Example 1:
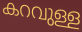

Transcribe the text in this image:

കറവുള്ള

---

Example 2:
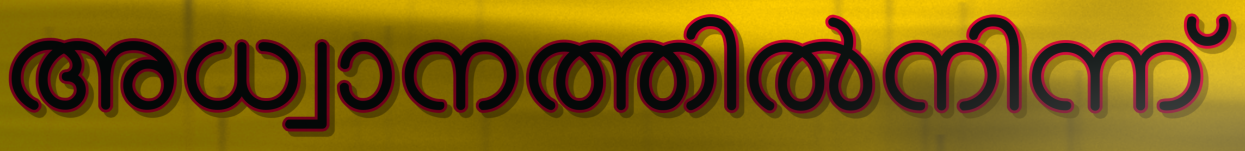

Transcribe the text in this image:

അധ്വാനത്തിൽനിന്ന്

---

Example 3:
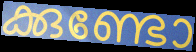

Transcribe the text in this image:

ക്കുണ്ടോ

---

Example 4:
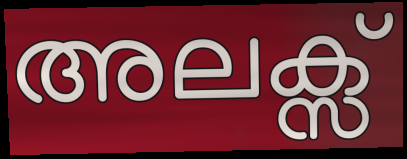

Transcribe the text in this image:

അലക്സ്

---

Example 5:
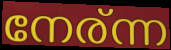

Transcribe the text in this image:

നേര്ന്ന